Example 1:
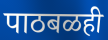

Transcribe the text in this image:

पाठबळही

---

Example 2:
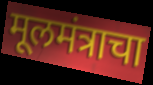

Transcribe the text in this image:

मूलमंत्राचा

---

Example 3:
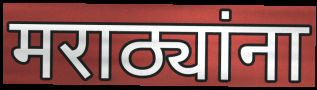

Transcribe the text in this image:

मराठ्यांना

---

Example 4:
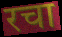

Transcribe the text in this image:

रचा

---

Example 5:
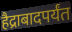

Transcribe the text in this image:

हैद्राबादपर्यंत